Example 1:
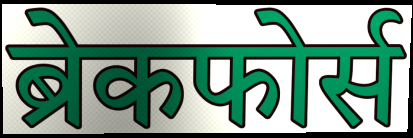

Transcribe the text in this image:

ब्रेकफोर्स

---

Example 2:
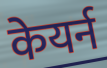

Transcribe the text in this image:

केयर्न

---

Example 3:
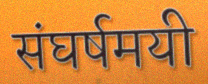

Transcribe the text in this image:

संघर्षमयी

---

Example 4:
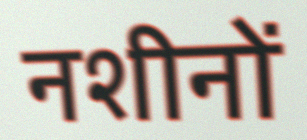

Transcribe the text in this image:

नशीनों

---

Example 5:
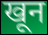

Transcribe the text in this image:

खून